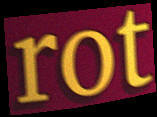
rot